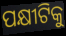
ପକ୍ଷୀଟିକୁ